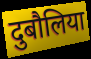
दुबौलिया